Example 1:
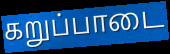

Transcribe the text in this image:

கறுப்பாடை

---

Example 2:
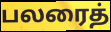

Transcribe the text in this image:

பலரைத்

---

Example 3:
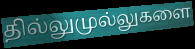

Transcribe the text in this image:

தில்லுமுல்லுகளை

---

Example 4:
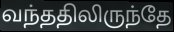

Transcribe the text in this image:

வந்ததிலிருந்தே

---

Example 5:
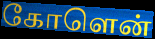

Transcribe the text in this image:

கோளென்